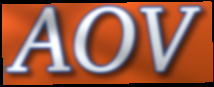
AOV